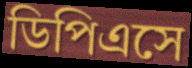
ডিপিএসে